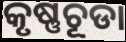
କୃଷ୍ଣଚୂଡା